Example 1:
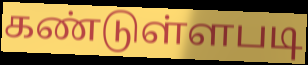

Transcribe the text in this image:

கண்டுள்ளபடி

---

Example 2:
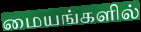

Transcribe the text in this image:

மையங்களில்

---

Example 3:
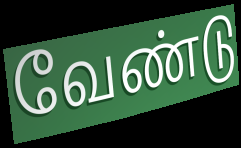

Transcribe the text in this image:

வேண்டு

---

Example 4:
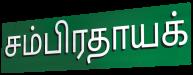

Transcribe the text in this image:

சம்பிரதாயக்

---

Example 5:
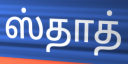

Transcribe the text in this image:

ஸ்தாத்